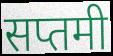
सप्तमी